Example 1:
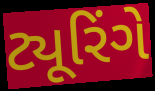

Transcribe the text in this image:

ટ્યૂરિંગે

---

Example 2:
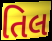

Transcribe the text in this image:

તિલ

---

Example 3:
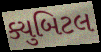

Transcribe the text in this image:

ક્યુબિટલ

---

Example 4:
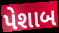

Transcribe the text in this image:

પેશાબ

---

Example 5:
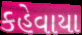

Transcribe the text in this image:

કહેવાયા